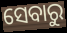
ସେବାରୁ